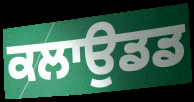
ਕਲਾਉਡਡ